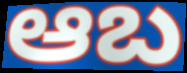
ఆబ